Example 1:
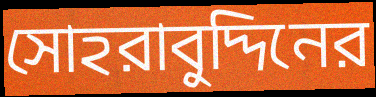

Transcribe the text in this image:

সোহরাবুদ্দিনের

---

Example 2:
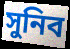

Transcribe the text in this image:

সুনিব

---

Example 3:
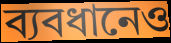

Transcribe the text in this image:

ব্যবধানেও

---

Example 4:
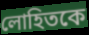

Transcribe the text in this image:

লোহিতকে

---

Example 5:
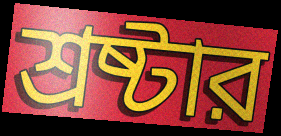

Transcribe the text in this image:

শ্রষ্টার